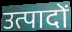
उत्पादों